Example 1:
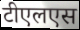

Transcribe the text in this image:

टीएलएस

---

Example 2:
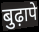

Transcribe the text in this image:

बुढ़ापे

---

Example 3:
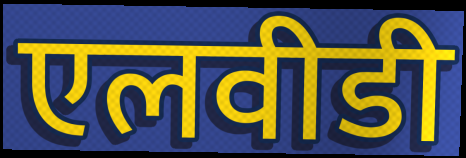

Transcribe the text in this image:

एलवीडी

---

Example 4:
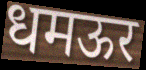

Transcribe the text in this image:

धमऊर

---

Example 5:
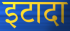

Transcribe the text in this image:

इटादा